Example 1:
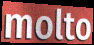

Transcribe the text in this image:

molto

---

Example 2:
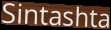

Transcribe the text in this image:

Sintashta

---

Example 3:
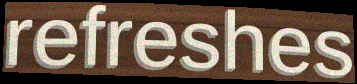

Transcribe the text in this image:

refreshes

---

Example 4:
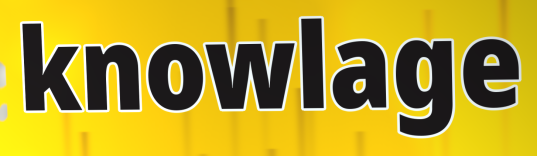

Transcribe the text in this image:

knowlage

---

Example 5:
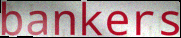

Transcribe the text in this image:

bankers